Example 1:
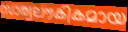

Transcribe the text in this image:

സാര്വലൗകികമായ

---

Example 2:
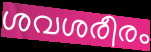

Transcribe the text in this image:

ശവശരീരം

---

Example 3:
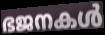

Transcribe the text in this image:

ഭജനകൾ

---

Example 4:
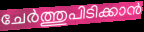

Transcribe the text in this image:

ചേർത്തുപിടിക്കാൻ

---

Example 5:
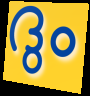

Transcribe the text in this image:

ദും